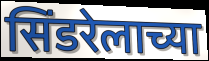
सिंडरेलाच्या